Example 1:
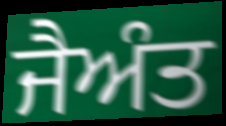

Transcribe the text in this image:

ਜੈਅੰਤ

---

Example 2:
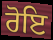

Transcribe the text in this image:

ਰੋਇ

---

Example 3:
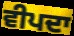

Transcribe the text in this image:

ਵੀਪਦਾ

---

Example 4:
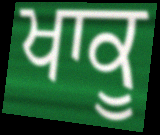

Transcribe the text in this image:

ਖਾਕੂ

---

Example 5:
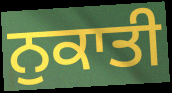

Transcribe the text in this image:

ਨੁਕਾਤੀ